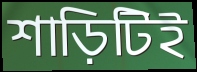
শাড়িটিই